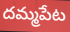
దమ్మపేట